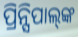
ପ୍ରିନ୍ସିପାଲ୍‍ଙ୍କ